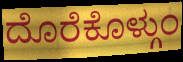
ದೊರೆಕೊಳ್ಗುಂ